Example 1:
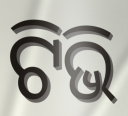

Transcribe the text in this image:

ଟିଭି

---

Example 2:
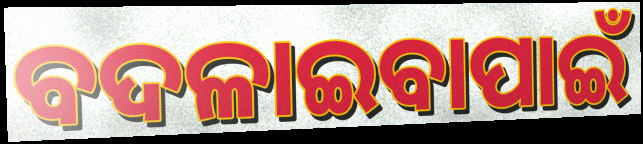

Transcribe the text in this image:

ବଦଳାଇବାପାଇଁ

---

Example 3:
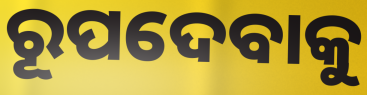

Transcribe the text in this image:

ରୂପଦେବାକୁ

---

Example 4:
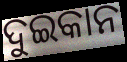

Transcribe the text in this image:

ଦୁଇକାନ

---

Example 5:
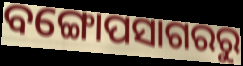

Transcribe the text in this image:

ବଙ୍ଗୋପସାଗରରୁ